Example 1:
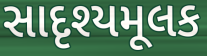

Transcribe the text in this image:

સાદૃશ્યમૂલક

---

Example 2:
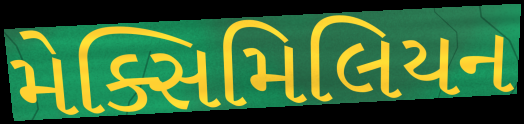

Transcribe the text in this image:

મેક્સિમિલિયન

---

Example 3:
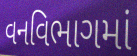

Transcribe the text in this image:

વનવિભાગમાં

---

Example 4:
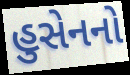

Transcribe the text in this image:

હુસેનનો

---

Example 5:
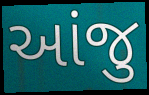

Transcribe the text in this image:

આંજુ